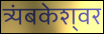
त्र्यंबकेश्वर